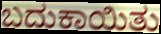
ಬದುಕಾಯಿತು